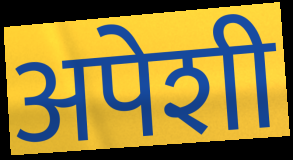
अपेशी